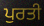
ਪੁਰਤੀ